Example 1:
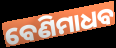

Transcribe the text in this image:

ବେଣିମାଧବ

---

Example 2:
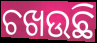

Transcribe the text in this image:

ଚଖଉଛି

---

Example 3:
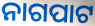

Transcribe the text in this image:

ନାଗପାଟ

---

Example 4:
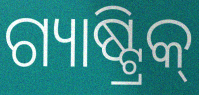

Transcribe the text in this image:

ଗ୍ୟାଷ୍ଟ୍ରିକ୍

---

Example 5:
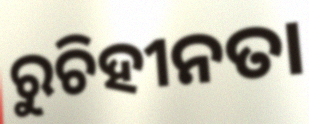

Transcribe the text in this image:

ରୁଚିହୀନତା